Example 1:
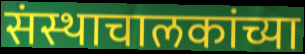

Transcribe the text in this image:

संस्थाचालकांच्या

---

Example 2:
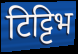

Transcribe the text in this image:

टिट्टिभ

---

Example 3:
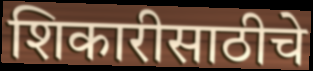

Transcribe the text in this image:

शिकारीसाठीचे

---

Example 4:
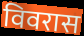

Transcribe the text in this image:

विवरास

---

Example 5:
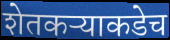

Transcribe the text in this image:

शेतकऱ्याकडेच